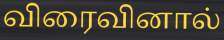
விரைவினால்